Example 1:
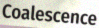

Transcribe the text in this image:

Coalescence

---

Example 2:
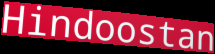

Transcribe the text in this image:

Hindoostan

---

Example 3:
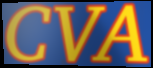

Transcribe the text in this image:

CVA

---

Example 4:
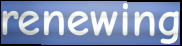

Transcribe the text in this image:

renewing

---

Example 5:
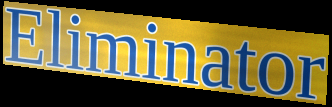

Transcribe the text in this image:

Eliminator